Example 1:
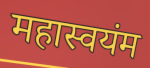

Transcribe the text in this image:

महास्वयंम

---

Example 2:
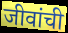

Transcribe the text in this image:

जीवांची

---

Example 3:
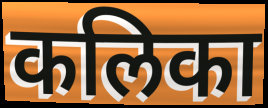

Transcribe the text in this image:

कलिका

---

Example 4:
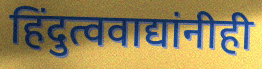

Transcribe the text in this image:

हिंदुत्ववाद्यांनीही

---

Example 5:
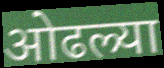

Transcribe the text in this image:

ओढल्या